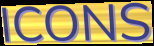
ICONS